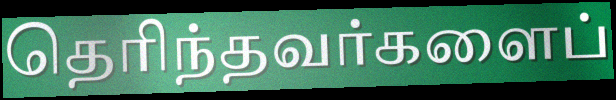
தெரிந்தவர்களைப்